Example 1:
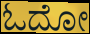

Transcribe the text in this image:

ಓದೋ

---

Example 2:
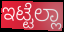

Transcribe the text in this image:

ಇಟ್ಟೆಲ್ಲಾ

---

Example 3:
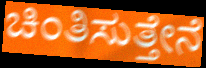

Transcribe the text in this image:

ಚಿಂತಿಸುತ್ತೇನೆ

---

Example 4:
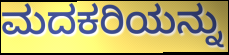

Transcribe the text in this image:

ಮದಕರಿಯನ್ನು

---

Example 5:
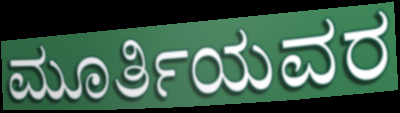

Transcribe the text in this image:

ಮೂರ್ತಿಯವರ